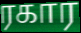
ரகார